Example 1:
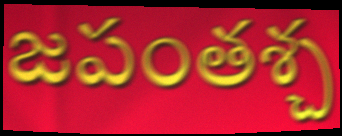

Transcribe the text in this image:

జపంతశ్చ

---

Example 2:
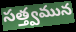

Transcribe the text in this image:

సత్త్వమున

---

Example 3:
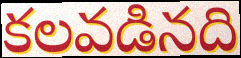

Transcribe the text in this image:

కలవడినది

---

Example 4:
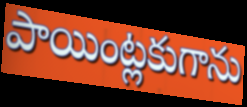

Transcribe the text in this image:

పాయింట్లకుగాను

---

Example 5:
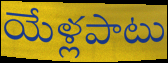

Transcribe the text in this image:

యేళ్లపాటు